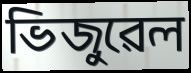
ভিজুৱেল